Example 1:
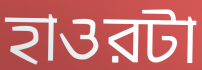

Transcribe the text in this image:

হাওরটা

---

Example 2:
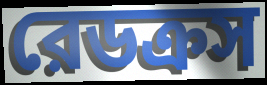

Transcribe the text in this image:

রেডক্রস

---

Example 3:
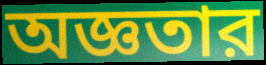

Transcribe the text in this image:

অজ্ঞতার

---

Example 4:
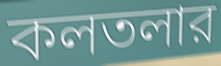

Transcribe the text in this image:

কলতলার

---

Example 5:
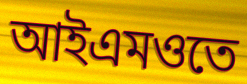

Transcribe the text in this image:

আইএমওতে